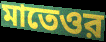
মাতেওর